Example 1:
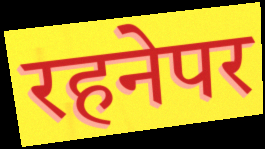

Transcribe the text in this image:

रहनेपर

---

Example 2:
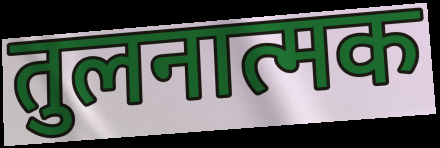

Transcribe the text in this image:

तुलनात्मक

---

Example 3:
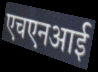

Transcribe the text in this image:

एचएनआई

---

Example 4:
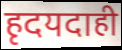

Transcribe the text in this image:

हृदयदाही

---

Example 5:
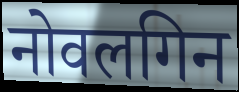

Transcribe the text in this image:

नोवलगिन